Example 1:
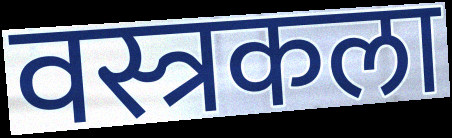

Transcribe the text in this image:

वस्त्रकला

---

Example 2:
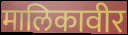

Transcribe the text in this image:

मालिकावीर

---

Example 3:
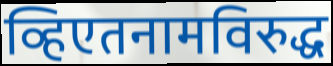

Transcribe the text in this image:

व्हिएतनामविरुद्ध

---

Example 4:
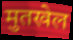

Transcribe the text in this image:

मुतखेल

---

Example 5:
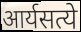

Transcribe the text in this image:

आर्यसत्ये